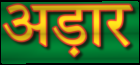
अड़ार